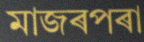
মাজৰপৰা